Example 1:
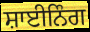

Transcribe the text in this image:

ਸ਼ਾਈਨਿੰਗ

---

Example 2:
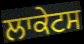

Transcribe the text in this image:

ਲਾਕੇਟਸ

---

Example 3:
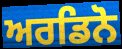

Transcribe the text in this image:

ਅਰਡਿਨੋ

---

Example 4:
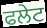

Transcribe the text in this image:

ਫਲੇਟ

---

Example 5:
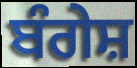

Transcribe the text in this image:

ਬੰਗੇਸ਼